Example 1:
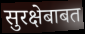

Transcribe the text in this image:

सुरक्षेबाबत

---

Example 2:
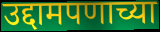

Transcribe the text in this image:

उद्दामपणाच्या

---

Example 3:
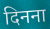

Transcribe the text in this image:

दिनना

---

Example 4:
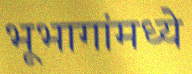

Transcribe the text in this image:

भूभागांमध्ये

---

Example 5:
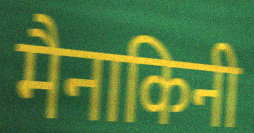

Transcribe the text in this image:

मैनाकिनी